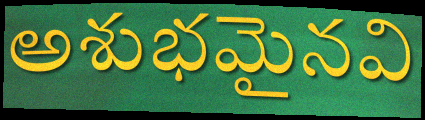
అశుభమైనవి